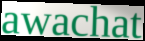
awachat